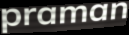
praman